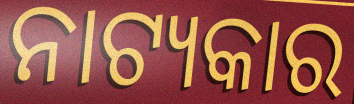
ନାଟ୍ୟକାର